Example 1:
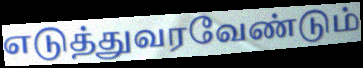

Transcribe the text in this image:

எடுத்துவரவேண்டும்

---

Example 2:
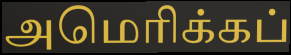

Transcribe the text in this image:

அமெரிக்கப்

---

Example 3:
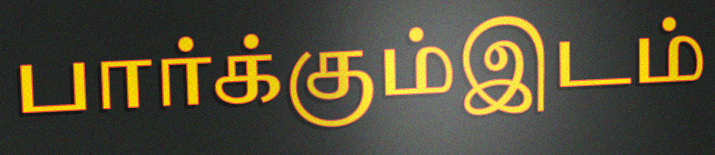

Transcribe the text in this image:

பார்க்கும்இடம்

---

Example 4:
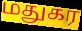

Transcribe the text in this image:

மதுகர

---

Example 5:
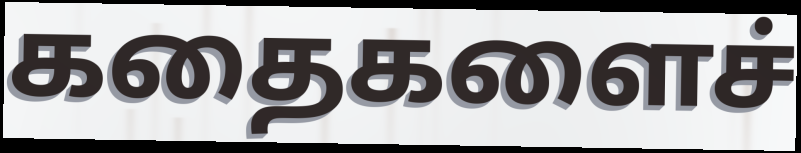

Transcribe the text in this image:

கதைகளைச்